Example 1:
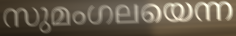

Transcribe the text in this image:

സുമംഗലയെന്ന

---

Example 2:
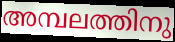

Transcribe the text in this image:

അമ്പലത്തിനു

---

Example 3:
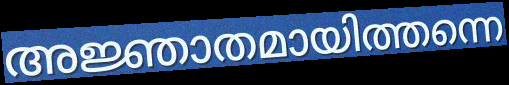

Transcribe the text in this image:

അജ്ഞാതമായിത്തന്നെ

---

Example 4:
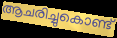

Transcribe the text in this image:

ആചരിച്ചുകൊണ്ട്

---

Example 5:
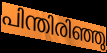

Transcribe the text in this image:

പിന്തിരിഞ്ഞു